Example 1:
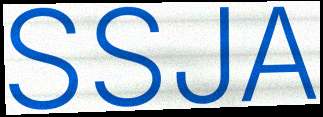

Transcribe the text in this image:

SSJA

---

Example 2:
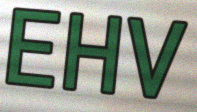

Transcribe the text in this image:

EHV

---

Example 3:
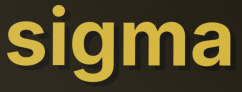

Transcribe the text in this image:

sigma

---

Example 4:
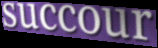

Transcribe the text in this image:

succour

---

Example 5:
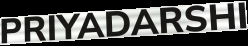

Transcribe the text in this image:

PRIYADARSHI